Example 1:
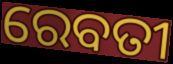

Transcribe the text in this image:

ରେବତୀ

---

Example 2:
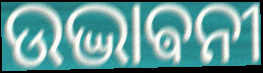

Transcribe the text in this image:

ଉଦ୍ଭାଵନୀ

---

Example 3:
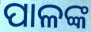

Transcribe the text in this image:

ପାଳଙ୍କ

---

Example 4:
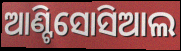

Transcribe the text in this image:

ଆଣ୍ଟିସୋସିଆଲ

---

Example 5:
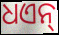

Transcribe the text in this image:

ଧଏନ୍